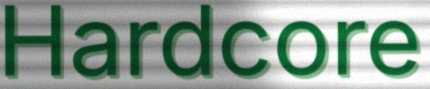
Hardcore